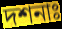
দশনাঃ